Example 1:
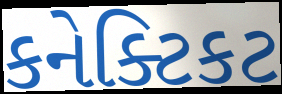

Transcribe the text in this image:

કનેક્ટિકટ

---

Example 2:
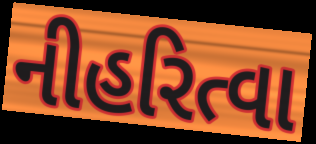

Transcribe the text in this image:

નીહરિત્વા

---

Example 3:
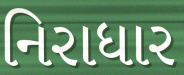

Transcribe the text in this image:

નિરાધાર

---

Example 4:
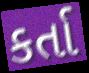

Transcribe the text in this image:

કર્તા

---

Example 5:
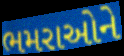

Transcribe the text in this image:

ભમરાઓને